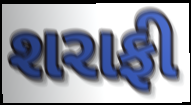
શરાફી